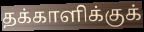
தக்காளிக்குக்